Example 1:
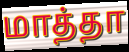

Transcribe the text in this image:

மாத்தா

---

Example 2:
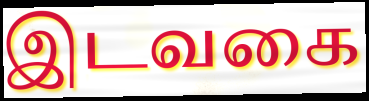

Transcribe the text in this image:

இடவகை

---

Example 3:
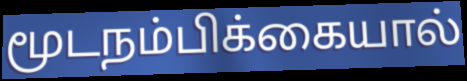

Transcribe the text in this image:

மூடநம்பிக்கையால்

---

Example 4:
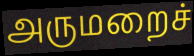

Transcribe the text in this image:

அருமறைச்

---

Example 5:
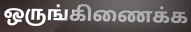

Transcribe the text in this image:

ஒருங்கிணைக்க